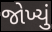
જોખ્યું